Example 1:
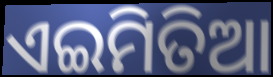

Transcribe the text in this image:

ଏଇମିତିଆ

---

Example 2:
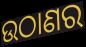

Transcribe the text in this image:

ଉଠାଣର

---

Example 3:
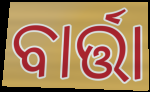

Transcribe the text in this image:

ବାର୍ତ୍ତା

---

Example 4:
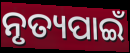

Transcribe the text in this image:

ନୃତ୍ୟପାଇଁ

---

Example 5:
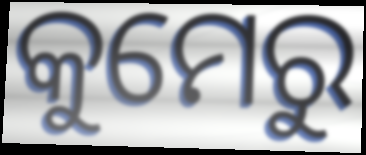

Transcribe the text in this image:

କୁମେରୁ